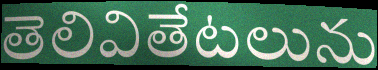
తెలివితేటలును